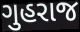
ગુહરાજ